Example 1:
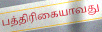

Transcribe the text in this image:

பத்திரிகையாவது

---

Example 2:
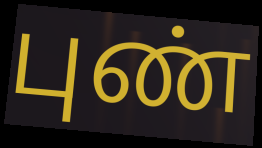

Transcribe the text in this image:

புண்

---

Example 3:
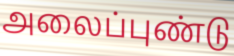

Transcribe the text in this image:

அலைப்புண்டு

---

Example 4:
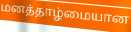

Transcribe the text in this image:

மனத்தாழ்மையான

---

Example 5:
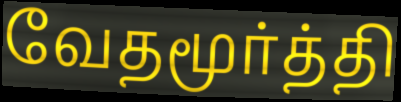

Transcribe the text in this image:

வேதமூர்த்தி